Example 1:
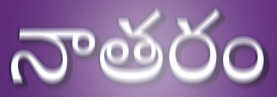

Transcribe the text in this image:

నాతరం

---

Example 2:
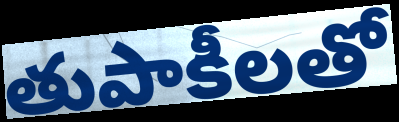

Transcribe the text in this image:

తుపాకీలతో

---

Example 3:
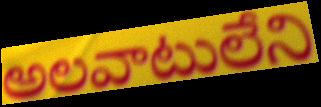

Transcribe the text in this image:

అలవాటులేని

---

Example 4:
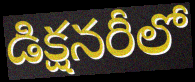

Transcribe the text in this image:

డిక్షనరీలో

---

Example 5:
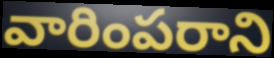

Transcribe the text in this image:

వారింపరాని